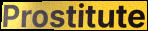
Prostitute